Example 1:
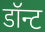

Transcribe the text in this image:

डॉन्ट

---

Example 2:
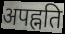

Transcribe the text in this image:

अपह्नति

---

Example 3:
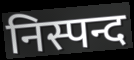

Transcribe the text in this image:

निस्पन्द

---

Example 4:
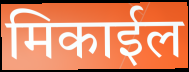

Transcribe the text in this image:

मिकाईल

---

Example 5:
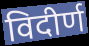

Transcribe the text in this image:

विदीर्ण